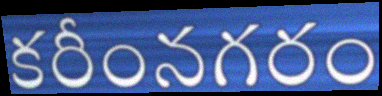
కరీంనగరం